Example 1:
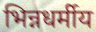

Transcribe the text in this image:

भिन्नधर्मीय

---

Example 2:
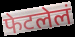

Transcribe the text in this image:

फेटलेलं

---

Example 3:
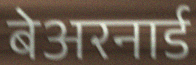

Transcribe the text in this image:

बेअरनार्ड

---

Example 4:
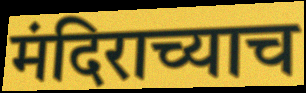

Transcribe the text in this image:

मंदिराच्याच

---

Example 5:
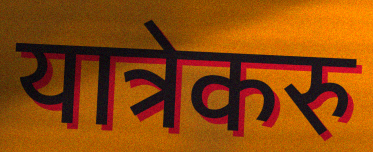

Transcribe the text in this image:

यात्रेकरु